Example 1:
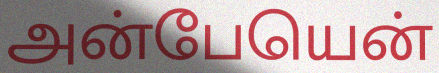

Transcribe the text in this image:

அன்பேயென்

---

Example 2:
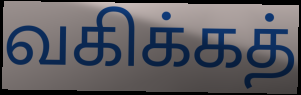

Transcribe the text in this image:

வகிக்கத்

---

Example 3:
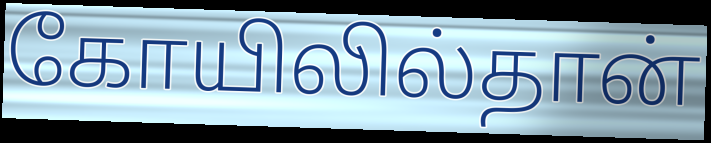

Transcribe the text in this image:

கோயிலில்தான்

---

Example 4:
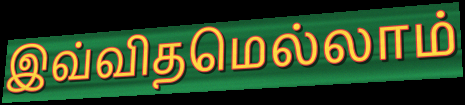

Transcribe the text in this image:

இவ்விதமெல்லாம்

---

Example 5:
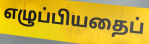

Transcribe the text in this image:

எழுப்பியதைப்